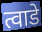
त्वाडे